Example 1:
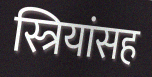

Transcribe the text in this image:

स्त्रियांसह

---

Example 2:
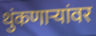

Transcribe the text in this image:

थुंकणाऱ्यांवर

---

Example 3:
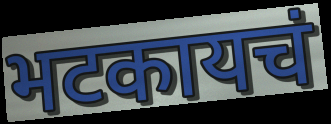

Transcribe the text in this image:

भटकायचं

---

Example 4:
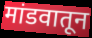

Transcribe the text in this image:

मांडवातून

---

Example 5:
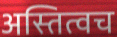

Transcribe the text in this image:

अस्तित्वच